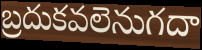
బ్రదుకవలెనుగదా